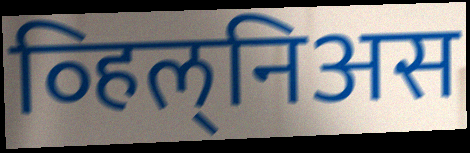
व्हिल्निअस